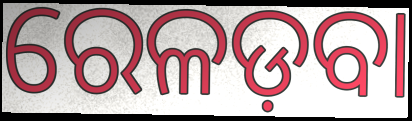
ରେଳଡ଼ବା